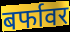
बर्फावर